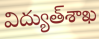
విద్యుత్‌శాఖ